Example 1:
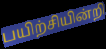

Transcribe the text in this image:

பயிற்சியின்றி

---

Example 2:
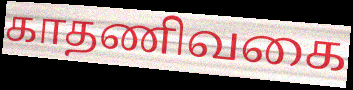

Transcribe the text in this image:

காதணிவகை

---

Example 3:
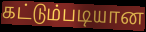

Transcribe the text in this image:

கட்டும்படியான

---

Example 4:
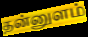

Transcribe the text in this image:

தன்னுளம்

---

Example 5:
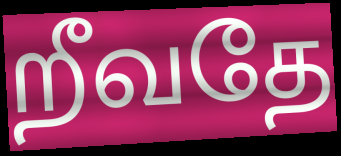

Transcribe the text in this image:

றீவதே